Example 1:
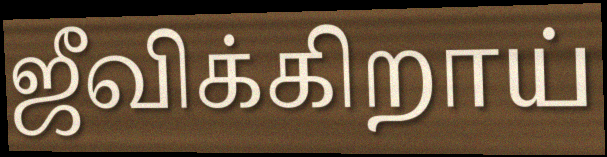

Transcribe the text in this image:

ஜீவிக்கிறாய்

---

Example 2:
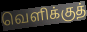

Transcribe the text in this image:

வெளிக்குத்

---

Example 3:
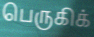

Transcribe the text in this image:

பெருகிக்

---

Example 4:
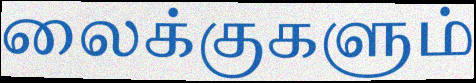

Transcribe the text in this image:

லைக்குகளும்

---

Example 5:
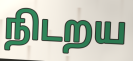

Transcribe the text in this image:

நிடறய